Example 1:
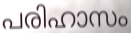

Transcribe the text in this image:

പരിഹാസം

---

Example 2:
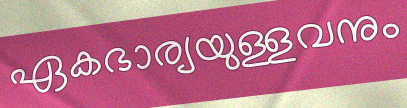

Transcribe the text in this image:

ഏകഭാര്യയുള്ളവനും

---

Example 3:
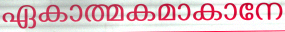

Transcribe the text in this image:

ഏകാത്മകമാകാനേ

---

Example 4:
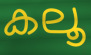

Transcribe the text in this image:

കലൂ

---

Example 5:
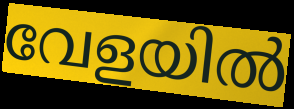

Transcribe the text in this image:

വേളയിൽ